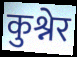
कुश्नेर